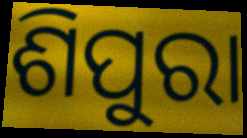
ଶିପୁରା